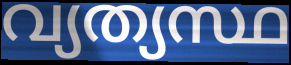
വ്യത്യസ്ഥ